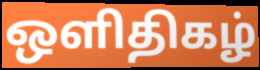
ஒளிதிகழ்